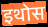
इथोस